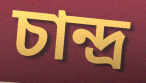
চান্দ্ৰ